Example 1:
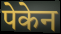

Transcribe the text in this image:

पेकेन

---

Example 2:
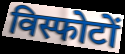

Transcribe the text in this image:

विस्फोटों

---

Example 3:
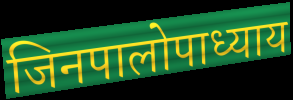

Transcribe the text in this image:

जिनपालोपाध्याय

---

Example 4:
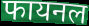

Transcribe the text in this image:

फायनल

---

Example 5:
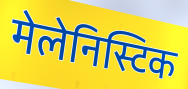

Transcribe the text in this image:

मेलेनिस्टिक